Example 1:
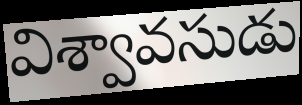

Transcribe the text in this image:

విశ్వావసుడు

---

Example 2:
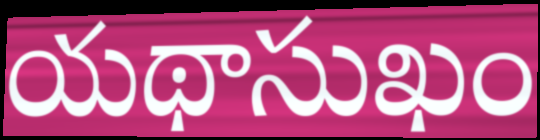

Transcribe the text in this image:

యథాసుఖం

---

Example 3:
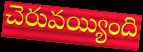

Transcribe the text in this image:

చెరువయ్యింది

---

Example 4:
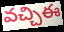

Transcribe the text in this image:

వచ్చిఈ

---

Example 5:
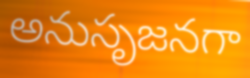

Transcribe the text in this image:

అనుసృజనగా